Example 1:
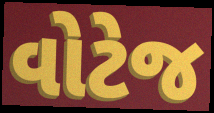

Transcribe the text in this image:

વોટેજ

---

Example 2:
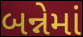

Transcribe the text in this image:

બન્નેમાં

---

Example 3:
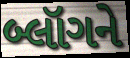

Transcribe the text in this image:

બ્લૉગને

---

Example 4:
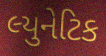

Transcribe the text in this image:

લ્યુનેટિક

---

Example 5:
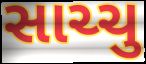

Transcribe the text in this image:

સાચ્ચુ